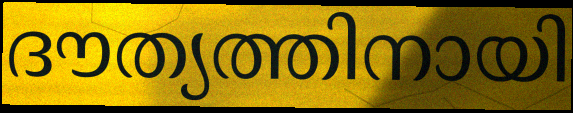
ദൗത്യത്തിനായി